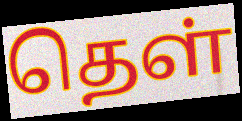
தெள்